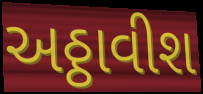
અઠ્ઠાવીશ